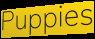
Puppies